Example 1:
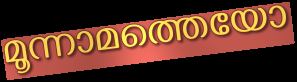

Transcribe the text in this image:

മൂന്നാമത്തെയോ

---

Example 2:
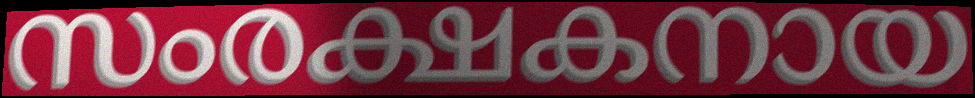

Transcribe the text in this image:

സംരക്ഷകനായ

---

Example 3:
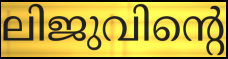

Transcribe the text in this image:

ലിജുവിന്റെ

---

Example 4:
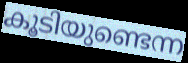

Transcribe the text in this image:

കൂടിയുണ്ടെന്ന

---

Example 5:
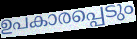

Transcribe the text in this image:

ഉപകാരപ്പെടും